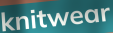
knitwear